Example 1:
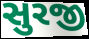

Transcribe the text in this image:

સુરજી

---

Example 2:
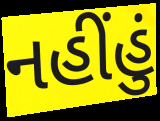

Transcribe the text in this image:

નહીંહું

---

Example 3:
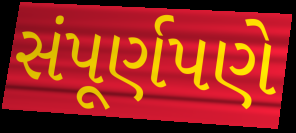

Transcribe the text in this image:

સંપૂર્ણપણે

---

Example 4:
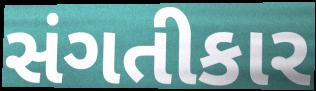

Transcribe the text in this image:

સંગતીકાર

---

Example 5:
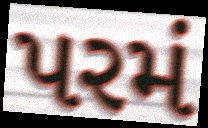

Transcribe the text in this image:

પરમં